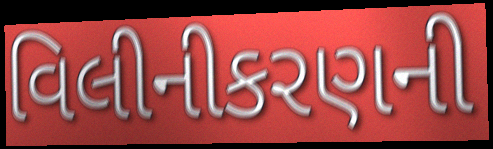
વિલીનીકરણની